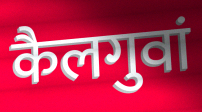
कैलगुवां